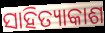
ସାହିତ୍ୟାକାଶ